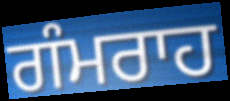
ਗੰਮਰਾਹ